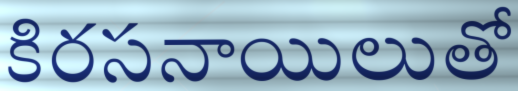
కిరసనాయిలుతో